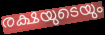
രക്ഷയുടെയും